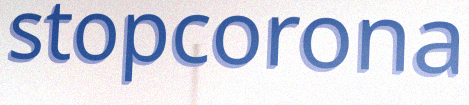
stopcorona